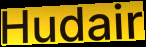
Hudair